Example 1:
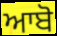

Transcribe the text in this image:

ਆਬੋ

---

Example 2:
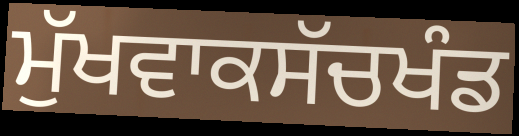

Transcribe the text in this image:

ਮੁੱਖਵਾਕਸੱਚਖੰਡ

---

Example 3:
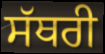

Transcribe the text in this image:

ਸੱਥਰੀ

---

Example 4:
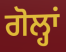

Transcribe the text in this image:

ਗੋਲ੍ਹਾਂ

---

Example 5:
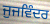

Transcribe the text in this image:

ਜੁਜਵਿੰਦਰ